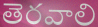
తెరవాలి